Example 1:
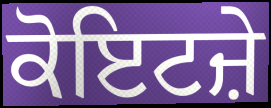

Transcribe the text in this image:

ਕੋਇਟਜ਼ੇ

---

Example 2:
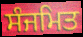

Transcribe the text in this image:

ਸੰਜਮਿਤ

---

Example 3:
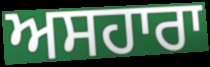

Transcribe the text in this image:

ਅਸਹਾਰਾ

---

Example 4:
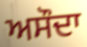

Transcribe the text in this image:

ਅਸੌਦਾ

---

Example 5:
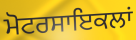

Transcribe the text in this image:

ਮੋਟਰਸਾਇਕਲਾਂ